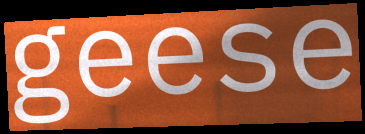
geese